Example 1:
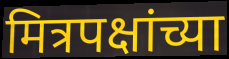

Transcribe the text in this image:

मित्रपक्षांच्या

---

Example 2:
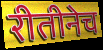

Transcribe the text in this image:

रीतीनेच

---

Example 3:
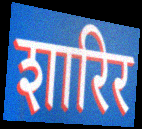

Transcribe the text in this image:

शारिर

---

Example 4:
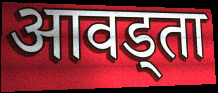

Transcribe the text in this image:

आवड्ता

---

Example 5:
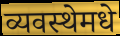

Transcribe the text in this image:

व्यवस्थेमधे